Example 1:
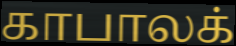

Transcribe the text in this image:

காபாலக்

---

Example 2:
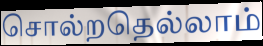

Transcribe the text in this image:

சொல்றதெல்லாம்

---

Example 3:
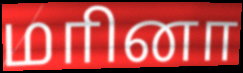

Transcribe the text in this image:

மரினா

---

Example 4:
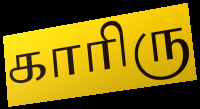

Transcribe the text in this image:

காரிரு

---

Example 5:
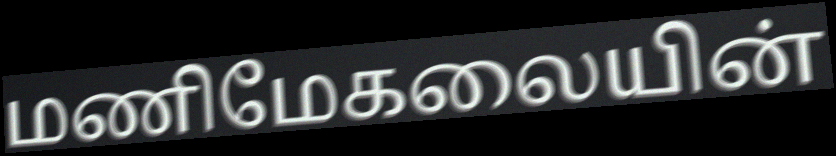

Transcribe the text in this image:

மணிமேகலையின்